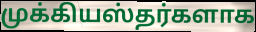
முக்கியஸ்தர்களாக